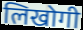
लिखोगी